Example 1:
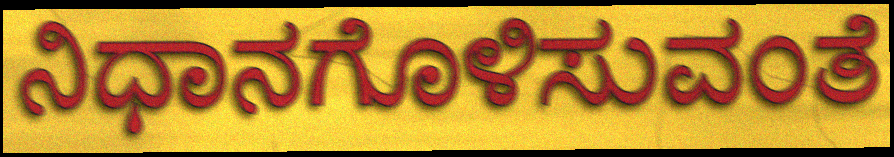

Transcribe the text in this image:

ನಿಧಾನಗೊಳಿಸುವಂತೆ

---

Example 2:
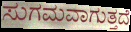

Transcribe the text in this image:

ಸುಗಮವಾಗುತ್ತದೆ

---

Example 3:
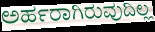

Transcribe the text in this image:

ಅರ್ಹರಾಗಿರುವುದಿಲ್ಲ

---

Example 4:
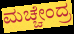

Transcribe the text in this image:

ಮಚ್ಚೇಂದ್ರ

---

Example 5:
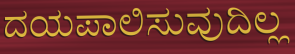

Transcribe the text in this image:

ದಯಪಾಲಿಸುವುದಿಲ್ಲ